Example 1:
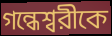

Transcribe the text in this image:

গন্ধেশ্বরীকে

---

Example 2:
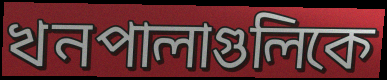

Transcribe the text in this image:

খনপালাগুলিকে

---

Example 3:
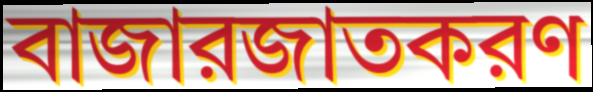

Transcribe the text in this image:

বাজারজাতকরণ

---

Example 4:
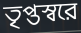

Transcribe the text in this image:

তৃপ্তস্বরে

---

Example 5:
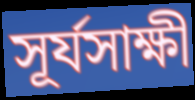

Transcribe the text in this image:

সূর্যসাক্ষী